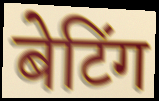
बेटिंग